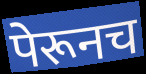
पेरूनच